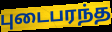
புடைபரந்த